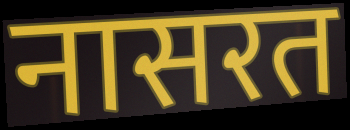
नासरत